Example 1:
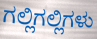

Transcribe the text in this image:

ಗಲ್ಲಿಗಲ್ಲಿಗಳು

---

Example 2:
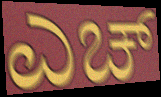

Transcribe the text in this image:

ಎಚ್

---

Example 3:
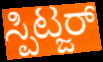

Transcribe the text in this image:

ಸ್ಪಿಟ್ಜರ್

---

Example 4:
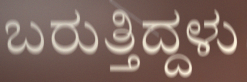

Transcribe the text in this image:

ಬರುತ್ತಿದ್ದಳು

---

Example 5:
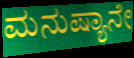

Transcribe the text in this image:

ಮನುಷ್ಯಾನೇ